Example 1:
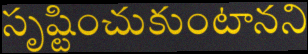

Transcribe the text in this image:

సృష్టించుకుంటానని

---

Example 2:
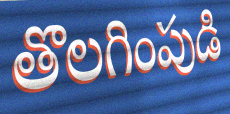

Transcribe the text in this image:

తొలగింపుడి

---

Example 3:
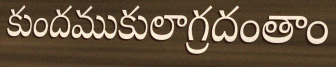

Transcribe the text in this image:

కుందముకులాగ్రదంతాం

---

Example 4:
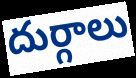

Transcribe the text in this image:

దుర్గాలు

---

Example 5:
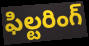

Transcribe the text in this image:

ఫిల్టరింగ్